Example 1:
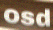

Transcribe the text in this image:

osd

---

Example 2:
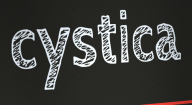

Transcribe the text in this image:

cystica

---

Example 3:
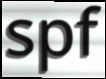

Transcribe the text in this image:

spf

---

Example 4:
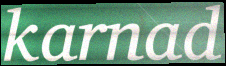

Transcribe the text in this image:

karnad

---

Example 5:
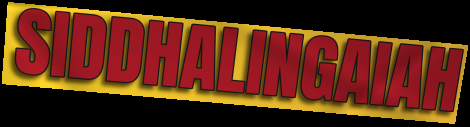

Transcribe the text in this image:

SIDDHALINGAIAH